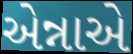
એન્નાએ